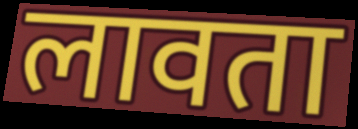
लावता